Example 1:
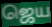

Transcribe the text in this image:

ஜெய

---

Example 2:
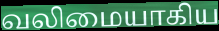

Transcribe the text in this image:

வலிமையாகிய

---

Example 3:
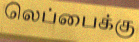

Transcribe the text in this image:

லெப்பைக்கு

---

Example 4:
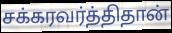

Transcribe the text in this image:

சக்கரவர்த்திதான்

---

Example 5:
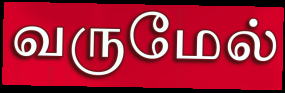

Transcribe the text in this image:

வருமேல்